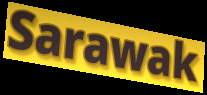
Sarawak